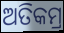
ଅତିକମ୍ର